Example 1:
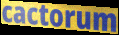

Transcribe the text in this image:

cactorum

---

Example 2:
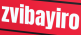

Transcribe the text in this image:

zvibayiro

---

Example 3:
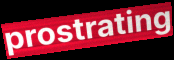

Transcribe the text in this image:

prostrating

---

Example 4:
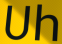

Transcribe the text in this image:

Uh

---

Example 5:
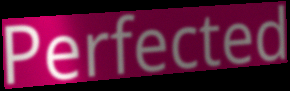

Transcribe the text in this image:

Perfected